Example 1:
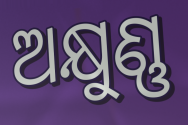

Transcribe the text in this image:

ଅକ୍ଷୁଣ୍ଣ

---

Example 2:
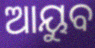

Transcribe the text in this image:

ଆୟୁବ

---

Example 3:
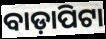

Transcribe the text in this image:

ବାଡ଼ାପିଟା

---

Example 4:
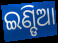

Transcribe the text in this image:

ଇଣ୍ଡିଆ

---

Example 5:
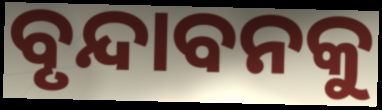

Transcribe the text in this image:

ବୃନ୍ଦାବନକୁ